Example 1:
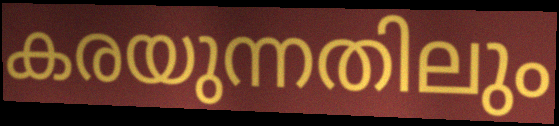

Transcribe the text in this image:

കരയുന്നതിലും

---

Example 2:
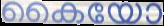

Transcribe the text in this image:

കൈയോ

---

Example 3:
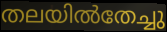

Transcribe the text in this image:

തലയിൽതേച്ചു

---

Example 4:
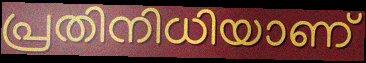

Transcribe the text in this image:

പ്രതിനിധിയാണ്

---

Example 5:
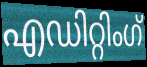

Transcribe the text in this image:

എഡിറ്റിംഗ്